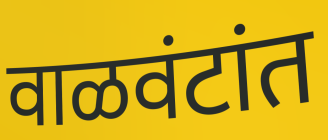
वाळवंटांत